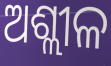
ଅଶ୍ଲୀଳ